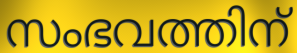
സംഭവത്തിന്